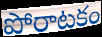
పోరాటకం